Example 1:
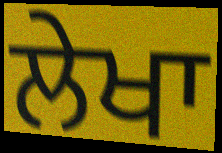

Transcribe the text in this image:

ਲੇਖਾ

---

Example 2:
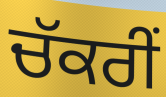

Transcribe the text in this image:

ਚੱਕਰੀਂ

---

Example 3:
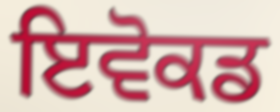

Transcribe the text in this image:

ਇਵੋਕਡ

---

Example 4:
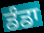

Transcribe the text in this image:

ਡੰਡਾ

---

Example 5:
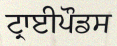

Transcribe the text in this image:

ਟ੍ਰਾਈਪੌਡਸ